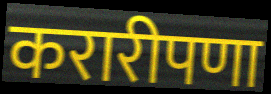
करारीपणा